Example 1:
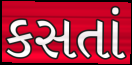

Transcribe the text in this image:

કસતાં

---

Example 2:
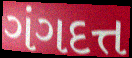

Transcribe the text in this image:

ગંગદત્ત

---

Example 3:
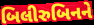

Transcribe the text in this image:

બિલીરુબિનને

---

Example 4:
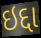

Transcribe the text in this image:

ઇદ્દા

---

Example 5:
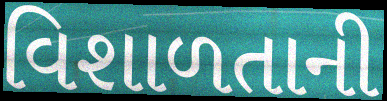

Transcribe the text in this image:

વિશાળતાની